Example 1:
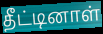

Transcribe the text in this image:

தீட்டினாள்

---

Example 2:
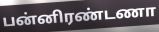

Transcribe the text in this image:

பன்னிரண்டணா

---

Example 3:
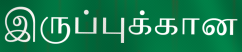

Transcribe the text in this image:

இருப்புக்கான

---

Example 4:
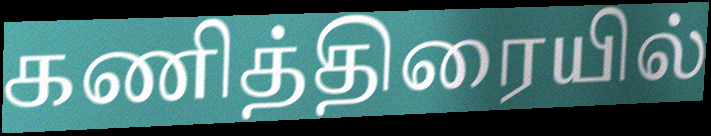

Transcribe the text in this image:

கணித்திரையில்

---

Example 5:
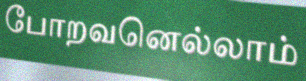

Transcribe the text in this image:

போறவனெல்லாம்